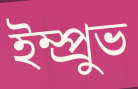
ইম্প্রুভ